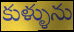
కుళ్ళును